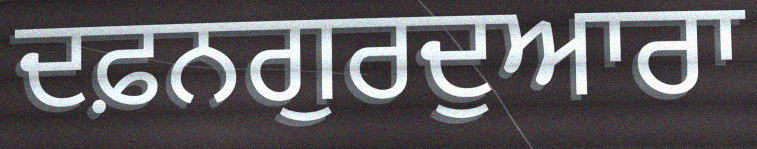
ਦਫ਼ਨਗੁਰਦੁਆਰਾ